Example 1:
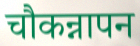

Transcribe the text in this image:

चौकन्नापन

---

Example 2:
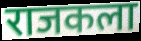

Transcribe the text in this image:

राजकला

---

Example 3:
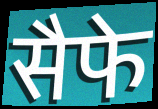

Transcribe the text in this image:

सैफे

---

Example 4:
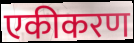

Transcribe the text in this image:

एकीकरण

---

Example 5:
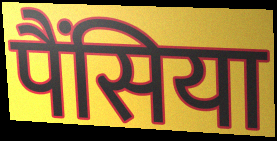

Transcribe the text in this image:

पैंसिया